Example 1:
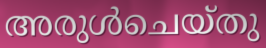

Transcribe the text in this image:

അരുൾചെയ്തു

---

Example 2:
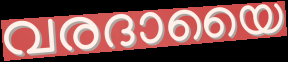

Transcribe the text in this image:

വരദായൈ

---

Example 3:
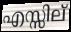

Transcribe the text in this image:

എസ്സില്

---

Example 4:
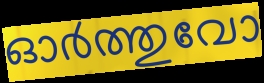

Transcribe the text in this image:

ഓർത്തുവോ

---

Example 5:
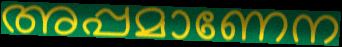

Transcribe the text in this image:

അപ്പമാണേന